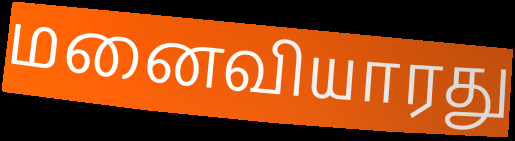
மனைவியாரது